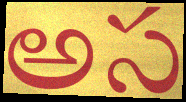
అస